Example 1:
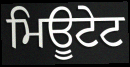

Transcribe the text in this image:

ਮਿਊਟੇਟ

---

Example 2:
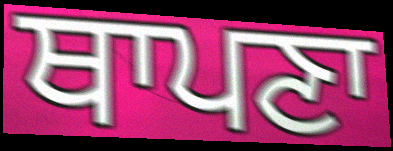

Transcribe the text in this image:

ਥਾਪਣਾ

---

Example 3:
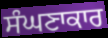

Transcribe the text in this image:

ਸੰਘਣਾਕਾਰ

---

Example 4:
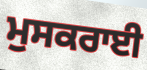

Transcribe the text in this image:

ਮੁਸਕਰਾਈ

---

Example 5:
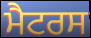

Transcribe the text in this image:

ਮੈਟਰਸ